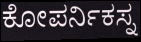
ಕೋಪರ್ನಿಕಸ್ನ